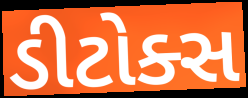
ડીટોક્સ